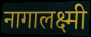
नागालक्ष्मी